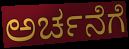
ಅರ್ಚನೆಗೆ